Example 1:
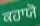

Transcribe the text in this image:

ਕਹਾਯੋ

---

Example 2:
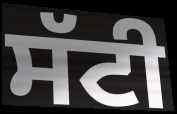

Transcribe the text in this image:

ਸੱਟੀ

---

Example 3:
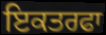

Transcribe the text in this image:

ਇਕਤਰਫਾ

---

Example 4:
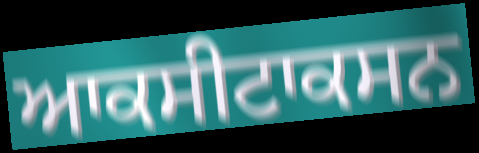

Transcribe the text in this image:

ਆਕਸੀਟਾਕਸਨ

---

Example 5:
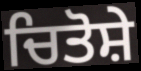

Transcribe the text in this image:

ਚਿਤੋਸ਼ੇ